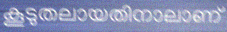
കൂടുതലായതിനാലാണ്